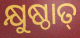
କ୍ଷୁଷ୍ଠାତ୍